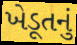
ખેડૂતનું